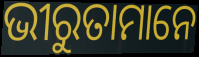
ଭୀରୁତାମାନେ